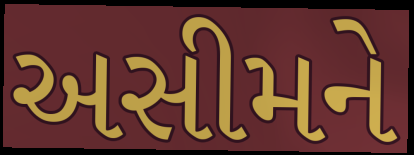
અસીમને